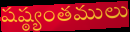
షష్ఠ్యంతములు